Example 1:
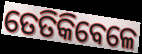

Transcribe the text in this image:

ତେତିକିବେଳେ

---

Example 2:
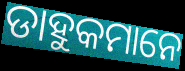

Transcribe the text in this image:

ଡାହୁକମାନେ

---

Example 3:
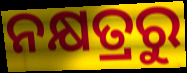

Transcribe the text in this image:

ନକ୍ଷତ୍ରରୁ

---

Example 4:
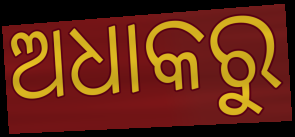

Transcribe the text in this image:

ଅଧାକରୁ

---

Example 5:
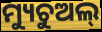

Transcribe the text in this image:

ମ୍ୟୁଚୁଅଲ୍